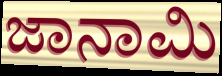
ಜಾನಾಮಿ